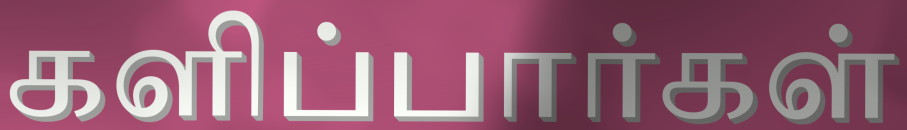
களிப்பார்கள்